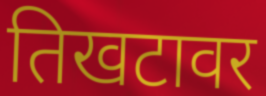
तिखटावर